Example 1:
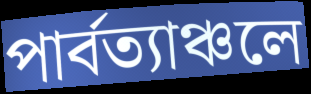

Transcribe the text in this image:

পার্বত্যাঞ্চলে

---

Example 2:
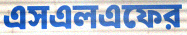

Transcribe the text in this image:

এসএলএফের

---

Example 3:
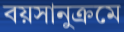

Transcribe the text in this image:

বয়সানুক্রমে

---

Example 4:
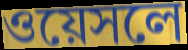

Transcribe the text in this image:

ওয়েসলে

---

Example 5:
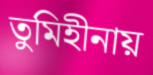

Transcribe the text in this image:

তুমিহীনায়